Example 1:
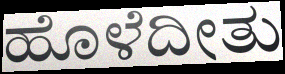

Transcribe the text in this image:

ಹೊಳೆದೀತು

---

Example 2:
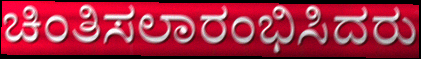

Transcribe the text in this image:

ಚಿಂತಿಸಲಾರಂಭಿಸಿದರು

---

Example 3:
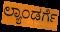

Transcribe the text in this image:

ಲ್ಯಾಂಡರ್ಗೆ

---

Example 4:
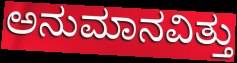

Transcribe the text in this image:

ಅನುಮಾನವಿತ್ತು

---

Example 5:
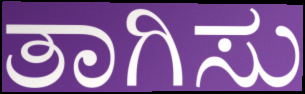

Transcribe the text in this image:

ತಾಗಿಸು